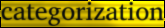
categorization